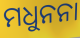
ମଧୁନନା